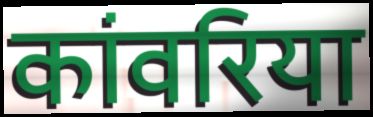
कांवरिया